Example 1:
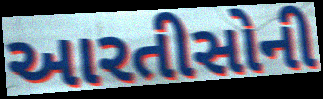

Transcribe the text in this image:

આરતીસોની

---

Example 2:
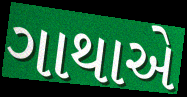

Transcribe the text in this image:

ગાથાએ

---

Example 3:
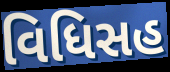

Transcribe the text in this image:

વિધિસહ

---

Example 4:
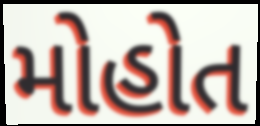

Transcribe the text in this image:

મોહોત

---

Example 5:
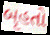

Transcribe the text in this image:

બૃહતો